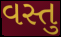
વસ્તુ